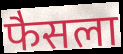
फैसला